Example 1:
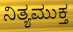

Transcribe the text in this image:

ನಿತ್ಯಮುಕ್ತ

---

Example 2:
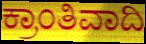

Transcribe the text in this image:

ಕ್ರಾಂತಿವಾದಿ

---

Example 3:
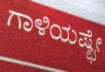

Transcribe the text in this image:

ಗಾಳಿಯಷ್ಟೇ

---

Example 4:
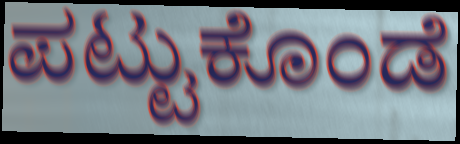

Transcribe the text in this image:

ಪಟ್ಟುಕೊಂಡೆ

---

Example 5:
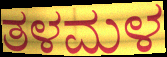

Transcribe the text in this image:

ತಳಮಳ